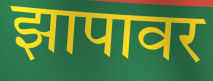
झापावर